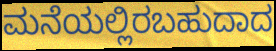
ಮನೆಯಲ್ಲಿರಬಹುದಾದ